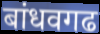
बांधवगढ